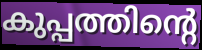
കുപ്പത്തിന്റെ